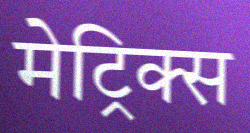
मेट्रिक्‍स